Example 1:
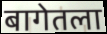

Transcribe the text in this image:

बागेतला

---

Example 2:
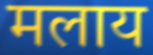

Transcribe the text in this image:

मलाय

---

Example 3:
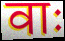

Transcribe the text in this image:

वाः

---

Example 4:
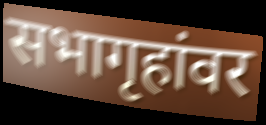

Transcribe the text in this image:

सभागृहांवर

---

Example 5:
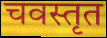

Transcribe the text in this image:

चवस्तृत